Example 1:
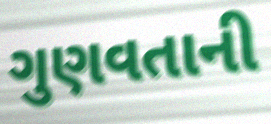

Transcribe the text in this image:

ગુણવતાની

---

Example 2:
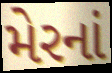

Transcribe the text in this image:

મેરનાં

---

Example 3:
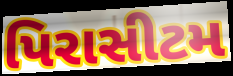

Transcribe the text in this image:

પિરાસીટમ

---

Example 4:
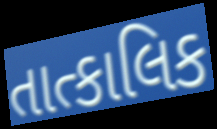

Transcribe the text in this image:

તાત્કાલિક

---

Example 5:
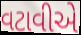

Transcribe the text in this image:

વટાવીએ